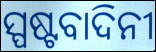
ସ୍ପଷ୍ଟବାଦିନୀ